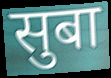
सुबा